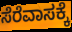
ಸೆರೆವಾಸಕ್ಕೆ